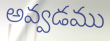
అవ్వడము